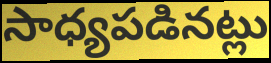
సాధ్యపడినట్లు